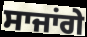
ਸਾਜਾਂਗੇ